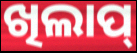
ଖିଲାପ୍